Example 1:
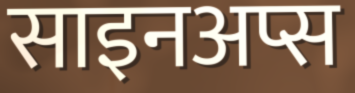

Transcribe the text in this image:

साइनअप्स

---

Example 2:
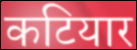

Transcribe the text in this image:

कटियार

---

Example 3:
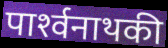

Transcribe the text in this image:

पार्श्वनाथकी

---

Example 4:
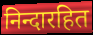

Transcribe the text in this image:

निन्दारहित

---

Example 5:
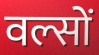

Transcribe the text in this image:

वल्सों